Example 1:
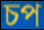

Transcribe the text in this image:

চপ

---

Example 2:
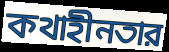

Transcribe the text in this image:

কথাহীনতার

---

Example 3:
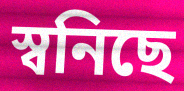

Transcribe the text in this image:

স্বনিছে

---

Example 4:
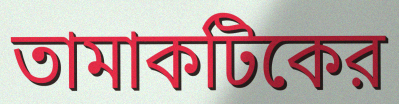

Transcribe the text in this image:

তামাকটিকের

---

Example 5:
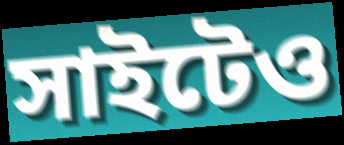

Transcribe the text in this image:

সাইটেও